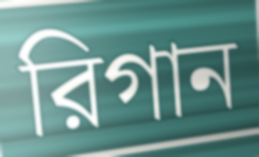
রিগান